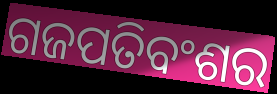
ଗଜପତିବଂଶର